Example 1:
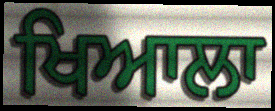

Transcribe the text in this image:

ਖਿਆਲਾ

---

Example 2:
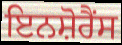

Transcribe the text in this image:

ਇਨਸ਼ੋਰੈਂਸ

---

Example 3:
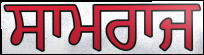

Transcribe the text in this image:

ਸਾਮਰਾਜ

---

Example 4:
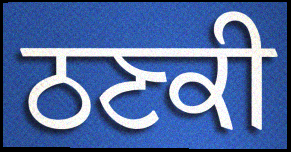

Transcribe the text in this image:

ਠਣਕੀ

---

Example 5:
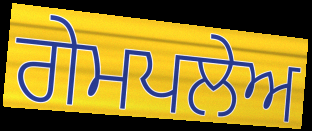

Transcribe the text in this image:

ਗੇਮਪਲੇਅ